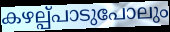
കഴല്പ്പാടുപോലും